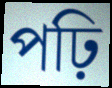
পঢ়ি